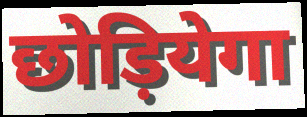
छोड़ियेगा